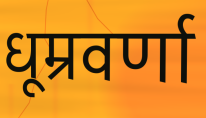
धूम्रवर्णा